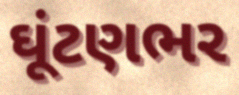
ઘૂંટણભર